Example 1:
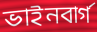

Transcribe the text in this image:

ভাইনবার্গ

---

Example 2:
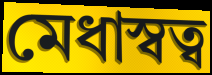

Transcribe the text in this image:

মেধাস্বত্ব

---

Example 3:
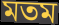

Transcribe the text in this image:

মতম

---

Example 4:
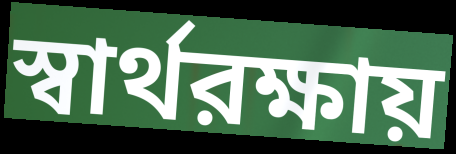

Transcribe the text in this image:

স্বার্থরক্ষায়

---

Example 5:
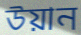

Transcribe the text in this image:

উয়ান